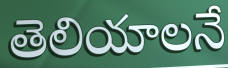
తెలియాలనే